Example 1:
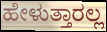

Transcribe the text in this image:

ಹೇಳುತ್ತಾರಲ್ಲ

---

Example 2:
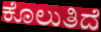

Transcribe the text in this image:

ಕೊಲುತಿದೆ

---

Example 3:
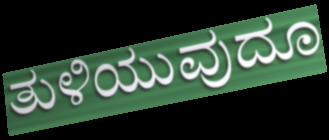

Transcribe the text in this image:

ತುಳಿಯುವುದೂ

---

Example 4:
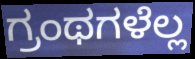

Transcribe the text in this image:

ಗ್ರಂಥಗಳೆಲ್ಲ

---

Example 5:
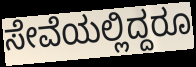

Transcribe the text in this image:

ಸೇವೆಯಲ್ಲಿದ್ದರೂ